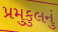
પ્રમુકુલનું